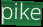
pike